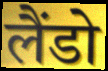
लैंडो